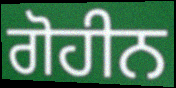
ਗੋਹੀਨ